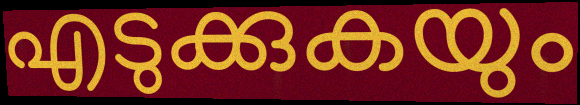
എടുക്കുകയും